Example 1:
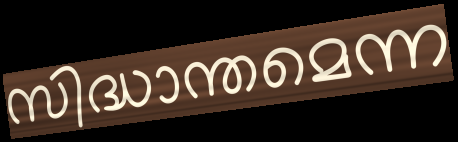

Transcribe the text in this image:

സിദ്ധാന്തമെന്ന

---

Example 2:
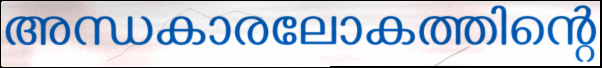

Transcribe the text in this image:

അന്ധകാരലോകത്തിന്റെ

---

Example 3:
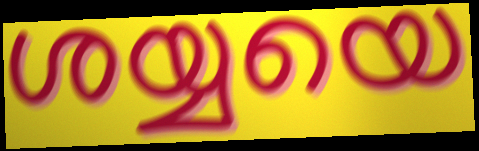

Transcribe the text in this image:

ശയ്യയെ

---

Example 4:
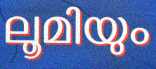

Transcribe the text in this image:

ലൂമിയും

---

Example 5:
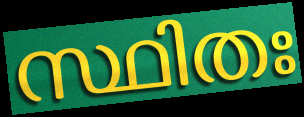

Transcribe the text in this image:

സ്ഥിതഃ